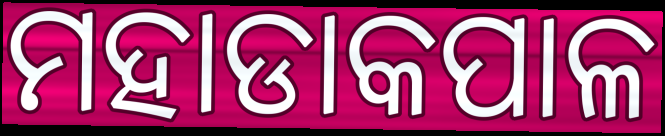
ମହାଡାକପାଳ